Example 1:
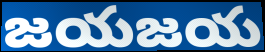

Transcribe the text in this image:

జయజయ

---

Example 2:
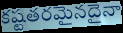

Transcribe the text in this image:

కష్టతరమైనదైనా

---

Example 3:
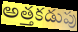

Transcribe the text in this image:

అత్తకడుపు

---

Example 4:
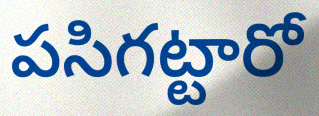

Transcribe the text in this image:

పసిగట్టారో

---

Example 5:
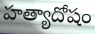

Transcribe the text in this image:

హత్యాదోషం